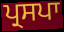
ਪ੍ਰਸਪਾ